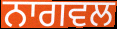
ਨਾਗਵਲ